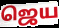
ஜெய